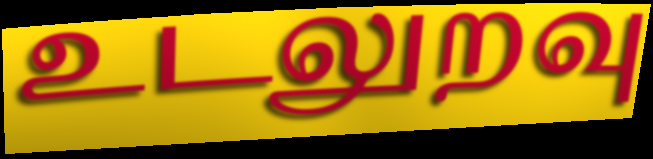
உடலுறவு